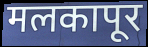
मलकापूर